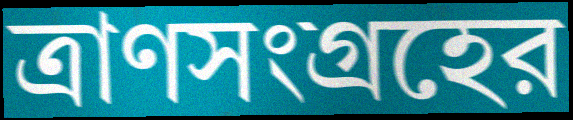
ত্রাণসংগ্রহের